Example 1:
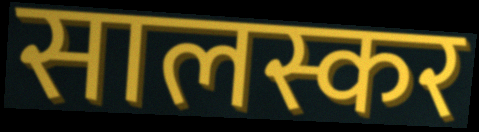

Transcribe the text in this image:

सालस्कर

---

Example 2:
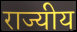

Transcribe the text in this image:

राज्यीय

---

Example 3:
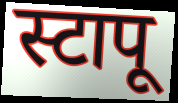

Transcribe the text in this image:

स्टापू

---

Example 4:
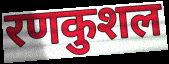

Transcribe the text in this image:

रणकुशल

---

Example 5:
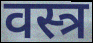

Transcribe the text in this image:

वस्त्र